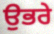
ਉਭਰੇ